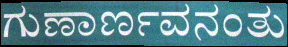
ಗುಣಾರ್ಣವನಂತು